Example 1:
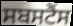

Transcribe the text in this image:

ਸਬਸਟੈਂਸ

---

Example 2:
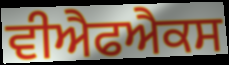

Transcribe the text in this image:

ਵੀਐਫਐਕਸ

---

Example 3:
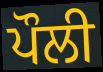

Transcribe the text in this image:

ਪੌਲੀ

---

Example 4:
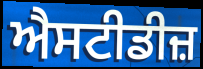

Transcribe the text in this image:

ਐਸਟੀਡੀਜ਼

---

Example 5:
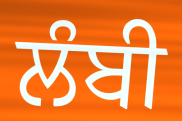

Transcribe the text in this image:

ਲੰਬੀ